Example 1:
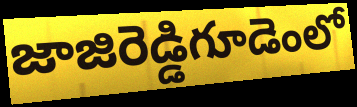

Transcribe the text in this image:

జాజిరెడ్డిగూడెంలో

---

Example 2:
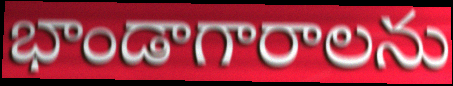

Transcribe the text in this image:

భాండాగారాలను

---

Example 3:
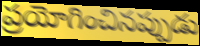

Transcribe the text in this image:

ప్రయోగించినప్పుడు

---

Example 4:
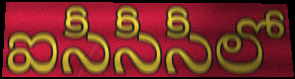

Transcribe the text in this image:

ఐసీసీసీలో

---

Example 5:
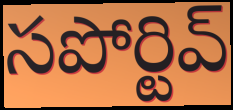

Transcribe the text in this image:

సపోర్టివ్